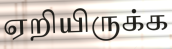
ஏறியிருக்க